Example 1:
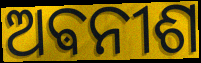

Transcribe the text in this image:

ଅଵନୀଶ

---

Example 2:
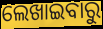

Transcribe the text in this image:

ଲେଖାଇବାରୁ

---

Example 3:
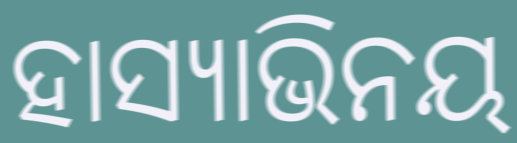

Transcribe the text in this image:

ହାସ୍ୟାଭିନୟ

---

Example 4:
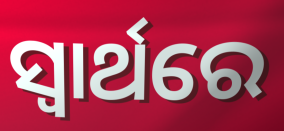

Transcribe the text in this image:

ସ୍ବାର୍ଥରେ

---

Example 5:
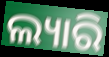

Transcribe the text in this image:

ଲ୍ୟାରି